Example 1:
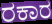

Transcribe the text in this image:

ರಕಾರ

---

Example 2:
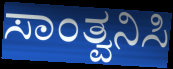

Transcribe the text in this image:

ಸಾಂತ್ವನಿಸಿ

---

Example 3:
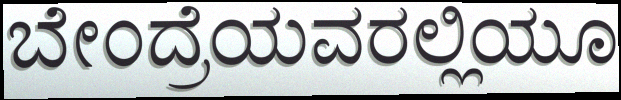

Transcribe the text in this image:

ಬೇಂದ್ರೆಯವರಲ್ಲಿಯೂ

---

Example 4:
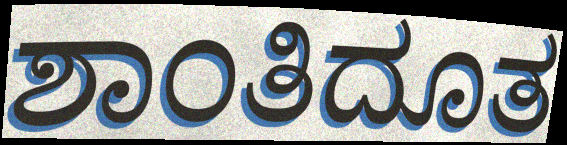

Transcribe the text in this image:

ಶಾಂತಿದೂತ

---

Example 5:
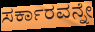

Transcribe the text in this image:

ಸರ್ಕಾರವನ್ನೇ